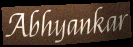
Abhyankar